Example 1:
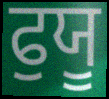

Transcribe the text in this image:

ਫੁਯੂ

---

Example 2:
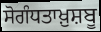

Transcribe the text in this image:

ਸੋਗੰਧਤਾਖ਼ੁਸ਼ਬੂ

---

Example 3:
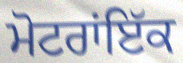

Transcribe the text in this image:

ਮੋਟਰਾਂਇੱਕ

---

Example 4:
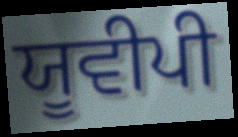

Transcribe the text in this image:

ਯੂਵੀਪੀ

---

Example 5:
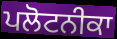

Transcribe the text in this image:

ਪਲੋਟਨੀਕਾ